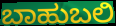
ಬಾಹುಬಲಿ